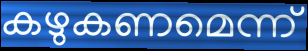
കഴുകണമെന്ന്